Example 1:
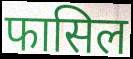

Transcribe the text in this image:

फासिल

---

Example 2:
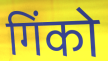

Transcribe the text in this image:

गिंको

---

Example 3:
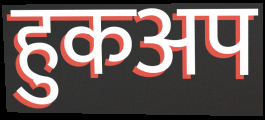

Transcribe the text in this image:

हुकअप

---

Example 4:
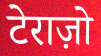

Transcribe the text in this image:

टेराज़ो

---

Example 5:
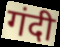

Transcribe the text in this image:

गंदी